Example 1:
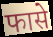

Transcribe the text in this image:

फासे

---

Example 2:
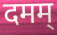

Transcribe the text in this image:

दमम्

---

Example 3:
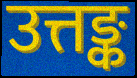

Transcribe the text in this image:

उत्तङ्क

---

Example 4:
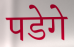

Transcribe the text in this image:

पडेगे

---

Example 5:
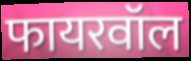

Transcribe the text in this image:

फायरवॉल